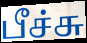
பீச்சு